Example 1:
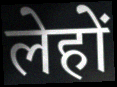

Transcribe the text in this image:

लेहों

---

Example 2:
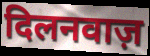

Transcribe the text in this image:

दिलनवाज़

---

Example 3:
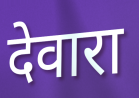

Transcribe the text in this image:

देवारा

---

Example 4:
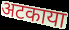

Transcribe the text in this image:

अटकाया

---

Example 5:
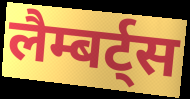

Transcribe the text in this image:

लैम्बर्ट्स